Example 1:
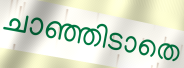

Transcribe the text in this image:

ചാഞ്ഞിടാതെ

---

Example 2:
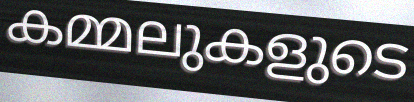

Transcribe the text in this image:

കമ്മലുകളുടെ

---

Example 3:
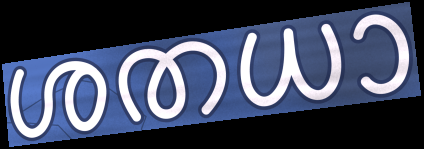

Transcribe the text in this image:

ശതധാ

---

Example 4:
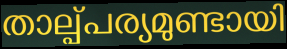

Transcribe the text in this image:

താല്പ്പര്യമുണ്ടായി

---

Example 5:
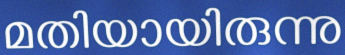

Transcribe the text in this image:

മതിയായിരുന്നു